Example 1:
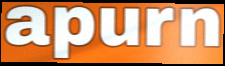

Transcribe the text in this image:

apurn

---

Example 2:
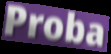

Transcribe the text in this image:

Proba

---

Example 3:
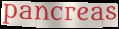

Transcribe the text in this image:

pancreas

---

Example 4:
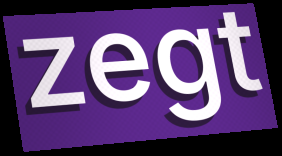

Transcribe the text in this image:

zegt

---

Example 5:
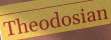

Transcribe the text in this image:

Theodosian